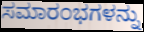
ಸಮಾರಂಭಗಳನ್ನು